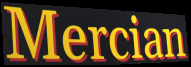
Mercian